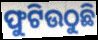
ଫୁଟିଉଠୁଛି